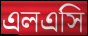
এলএসি